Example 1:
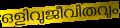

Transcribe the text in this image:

ഒളിവുജീവിതവും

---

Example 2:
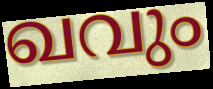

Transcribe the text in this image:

ഖവും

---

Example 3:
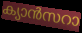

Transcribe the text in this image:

ക്യാൻസറാ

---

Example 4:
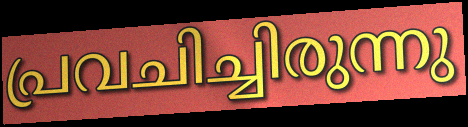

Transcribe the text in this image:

പ്രവചിച്ചിരുന്നു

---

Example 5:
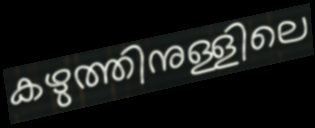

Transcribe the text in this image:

കഴുത്തിനുള്ളിലെ